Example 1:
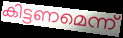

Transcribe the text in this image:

കിട്ടണമെന്ന്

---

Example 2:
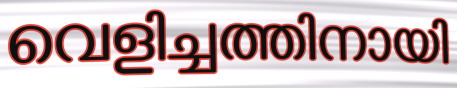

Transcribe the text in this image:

വെളിച്ചത്തിനായി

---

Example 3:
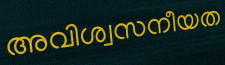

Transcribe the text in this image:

അവിശ്വസനീയത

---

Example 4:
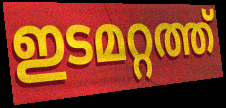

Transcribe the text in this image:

ഇടമറ്റത്ത്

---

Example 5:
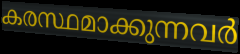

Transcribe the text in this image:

കരസ്ഥമാക്കുന്നവർ